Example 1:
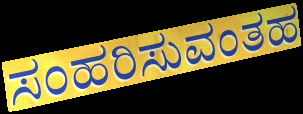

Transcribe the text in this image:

ಸಂಹರಿಸುವಂತಹ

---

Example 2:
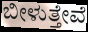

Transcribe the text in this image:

ಬೀಳುತ್ತೇವೆ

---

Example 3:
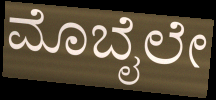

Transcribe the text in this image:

ಮೊಬೈಲೇ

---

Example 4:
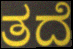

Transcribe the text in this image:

ತದೆ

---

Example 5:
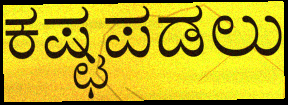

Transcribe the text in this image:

ಕಷ್ಟಪಡಲು